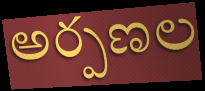
అర్పణల